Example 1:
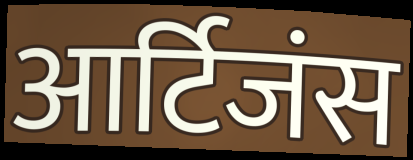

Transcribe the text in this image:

आर्टिजंस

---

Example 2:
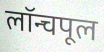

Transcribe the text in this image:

लॉन्चपूल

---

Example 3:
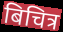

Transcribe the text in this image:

बिचित्र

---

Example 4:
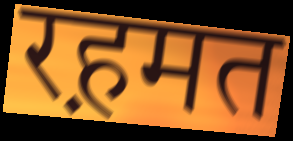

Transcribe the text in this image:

रह़मत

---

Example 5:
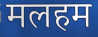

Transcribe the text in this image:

मलहम